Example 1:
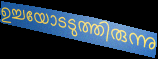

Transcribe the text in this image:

ഉച്ചയോടടുത്തിരുന്നു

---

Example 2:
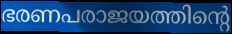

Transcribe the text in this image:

ഭരണപരാജയത്തിന്റെ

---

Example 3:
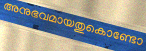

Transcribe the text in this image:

അനുഭവമായതുകൊണ്ടോ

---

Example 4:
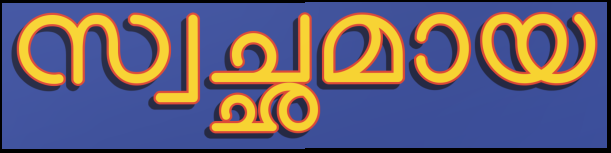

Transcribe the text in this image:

സ്വച്ഛമായ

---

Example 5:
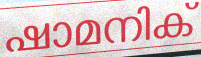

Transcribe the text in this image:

ഷാമനിക്